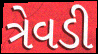
ત્રેવડી